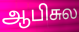
ஆபிசுல